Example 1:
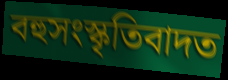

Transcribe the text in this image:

বহুসংস্কৃতিবাদত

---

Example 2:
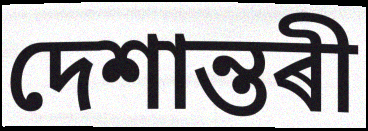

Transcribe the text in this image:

দেশান্তৰী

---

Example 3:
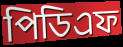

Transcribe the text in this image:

পিডিএফ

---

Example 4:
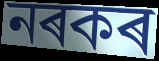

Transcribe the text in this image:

নৰকৰ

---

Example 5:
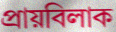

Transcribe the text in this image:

প্ৰায়বিলাক